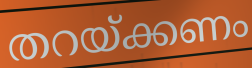
തറയ്ക്കണം